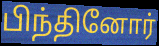
பிந்தினோர்